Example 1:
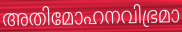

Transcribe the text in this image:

അതിമോഹനവിഭ്രമാ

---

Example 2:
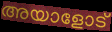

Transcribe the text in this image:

അയാളോട്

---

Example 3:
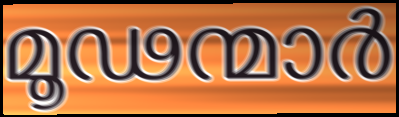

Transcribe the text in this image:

മൂഢന്മാർ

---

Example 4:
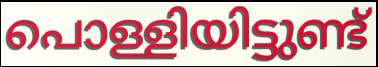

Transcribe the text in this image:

പൊള്ളിയിട്ടുണ്ട്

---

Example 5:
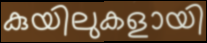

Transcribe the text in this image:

കുയിലുകളായി